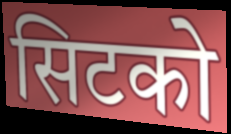
सिटको